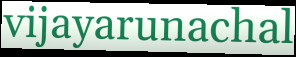
vijayarunachal